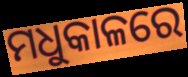
ମଧୁକାଳରେ